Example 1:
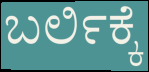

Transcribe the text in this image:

ಬರ್ಲಿಕ್ಕೆ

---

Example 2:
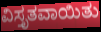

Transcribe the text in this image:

ವಿಸ್ತೃತವಾಯಿತು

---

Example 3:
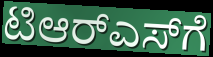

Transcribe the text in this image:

ಟಿಆರ್‌ಎಸ್‌ಗೆ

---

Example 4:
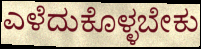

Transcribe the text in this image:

ಎಳೆದುಕೊಳ್ಳಬೇಕು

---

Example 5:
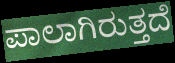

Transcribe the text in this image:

ಪಾಲಾಗಿರುತ್ತದೆ